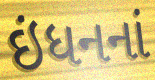
ઇંધનનાં